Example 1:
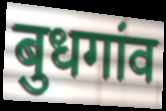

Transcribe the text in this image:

बुधगांव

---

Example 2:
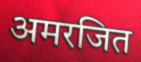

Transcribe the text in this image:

अमरजित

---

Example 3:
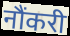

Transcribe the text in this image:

नौंकरी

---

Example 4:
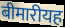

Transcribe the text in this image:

बीमारीयह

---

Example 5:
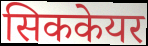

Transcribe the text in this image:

सिककेयर